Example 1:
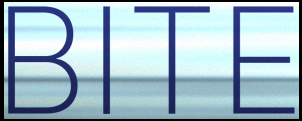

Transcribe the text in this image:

BITE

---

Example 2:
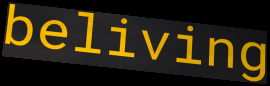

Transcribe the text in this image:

beliving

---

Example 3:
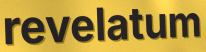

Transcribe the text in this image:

revelatum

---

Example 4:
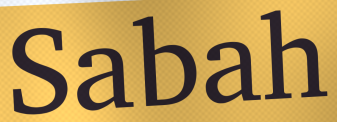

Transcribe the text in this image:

Sabah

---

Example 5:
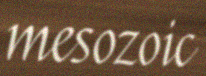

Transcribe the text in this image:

mesozoic